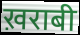
ख़राबी